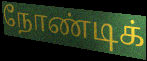
நோண்டிக்